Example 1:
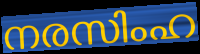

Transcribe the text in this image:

നരസിംഹ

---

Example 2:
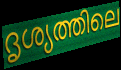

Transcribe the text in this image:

ദൃശ്യത്തിലെ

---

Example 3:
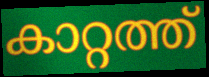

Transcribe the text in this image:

കാറ്റത്ത്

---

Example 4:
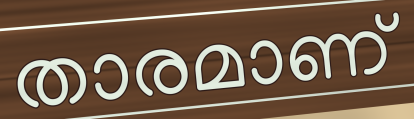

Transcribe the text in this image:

താരമാണ്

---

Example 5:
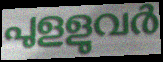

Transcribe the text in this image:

പുളളുവർ